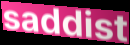
saddist